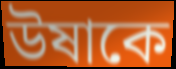
উষাকে